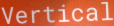
Vertical